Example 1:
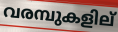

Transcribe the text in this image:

വരമ്പുകളില്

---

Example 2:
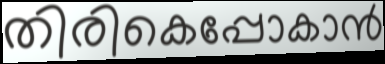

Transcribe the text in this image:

തിരികെപ്പോകാൻ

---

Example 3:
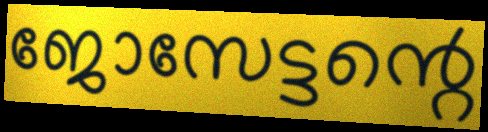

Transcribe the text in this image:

ജോസേട്ടന്റെ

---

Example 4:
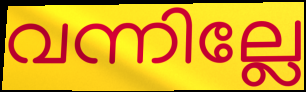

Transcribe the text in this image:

വന്നില്ലേ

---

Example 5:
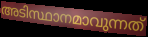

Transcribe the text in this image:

അടിസ്ഥാനമാവുന്നത്